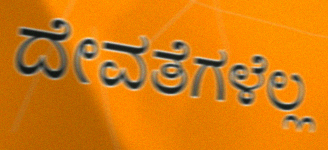
ದೇವತೆಗಳೆಲ್ಲ